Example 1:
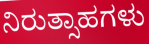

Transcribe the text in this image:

ನಿರುತ್ಸಾಹಗಳು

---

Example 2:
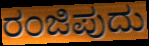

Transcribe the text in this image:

ರಂಜಿಪುದು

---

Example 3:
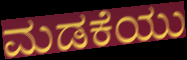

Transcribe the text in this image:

ಮಡಕೆಯು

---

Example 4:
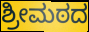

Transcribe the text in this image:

ಶ್ರೀಮಠದ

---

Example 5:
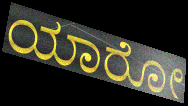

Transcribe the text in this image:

ಯಾರೋ